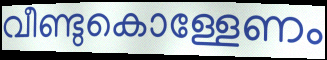
വീണ്ടുകൊള്ളേണം